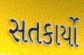
સતકાર્યો